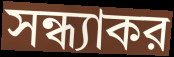
সন্ধ্যাকর